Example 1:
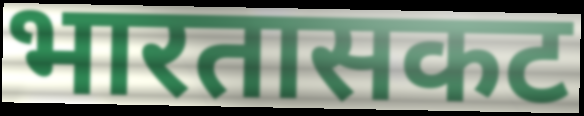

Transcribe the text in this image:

भारतासकट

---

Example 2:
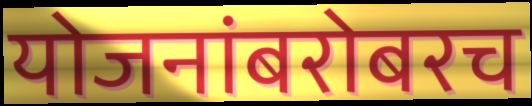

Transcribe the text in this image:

योजनांबरोबरच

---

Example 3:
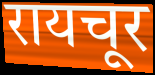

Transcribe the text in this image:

रायचूर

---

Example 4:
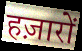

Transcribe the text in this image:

हज़ारों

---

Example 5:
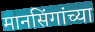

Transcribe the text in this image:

मानसिंगांच्या